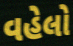
વહેલો